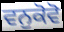
ਵਨੁਕੋਵੋ